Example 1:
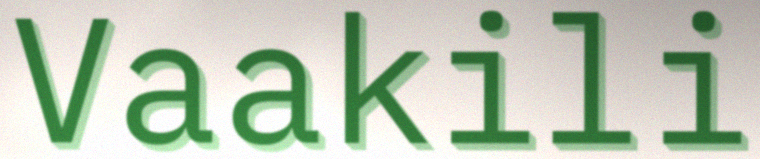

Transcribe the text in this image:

Vaakili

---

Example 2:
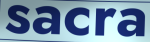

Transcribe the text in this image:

sacra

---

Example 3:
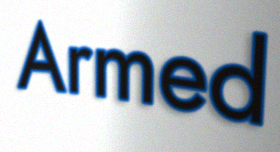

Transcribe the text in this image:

Armed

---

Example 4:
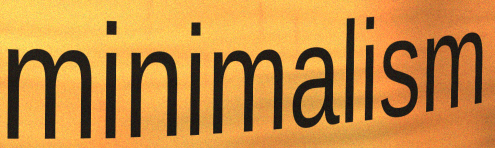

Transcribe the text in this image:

minimalism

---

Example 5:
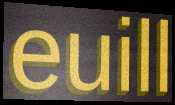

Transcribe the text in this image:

euill